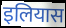
इलियास